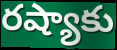
రష్యాకు